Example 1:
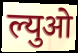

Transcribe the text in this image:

ल्युओ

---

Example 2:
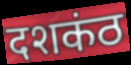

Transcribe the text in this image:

दशकंठ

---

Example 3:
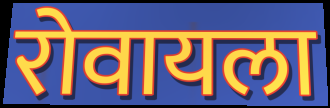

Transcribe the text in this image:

रोवायला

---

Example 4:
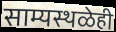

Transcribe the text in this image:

साम्यस्थळेही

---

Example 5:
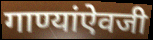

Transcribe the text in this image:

गाण्यांऐवजी